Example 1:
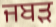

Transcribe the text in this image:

ਜਬੜ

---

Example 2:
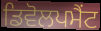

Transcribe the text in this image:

ਡਿਵੋਲਪਮੈਂਟ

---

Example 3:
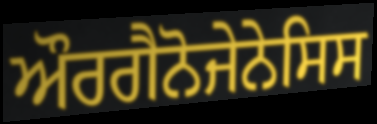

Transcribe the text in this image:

ਔਰਗੈਨੋਜੇਨੇਸਿਸ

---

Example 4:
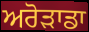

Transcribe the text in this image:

ਅਰੋੜਾਡਾ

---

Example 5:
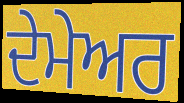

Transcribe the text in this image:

ਦੇਮੇਅਰ